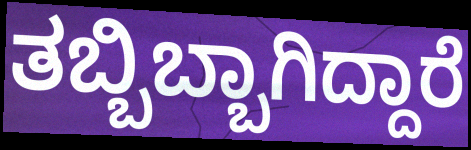
ತಬ್ಬಿಬ್ಬಾಗಿದ್ದಾರೆ